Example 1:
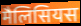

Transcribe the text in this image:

मैलिसियस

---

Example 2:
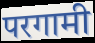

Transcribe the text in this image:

परगामी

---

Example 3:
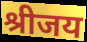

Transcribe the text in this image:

श्रीजय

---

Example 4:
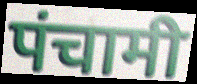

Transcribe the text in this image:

पंचामी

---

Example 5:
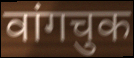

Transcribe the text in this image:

वांगचुक